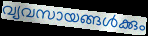
വ്യവസായങ്ങൾക്കും